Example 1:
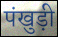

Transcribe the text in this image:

पंखुड़ी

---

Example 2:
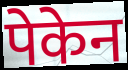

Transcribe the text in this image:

पेकेन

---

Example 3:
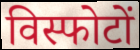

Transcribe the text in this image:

विस्फोटों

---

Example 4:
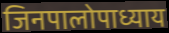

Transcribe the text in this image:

जिनपालोपाध्याय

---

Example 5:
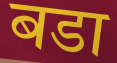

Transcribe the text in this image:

बडा